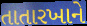
તાતારખાને